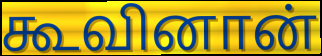
கூவினான்